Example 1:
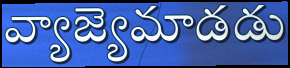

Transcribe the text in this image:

వ్యాజ్యెమాడడు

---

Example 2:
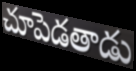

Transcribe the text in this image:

చూపెడతాడు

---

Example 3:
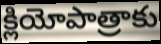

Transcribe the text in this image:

క్లియోపాత్రాకు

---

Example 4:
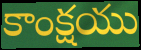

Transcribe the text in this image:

కాంక్షయు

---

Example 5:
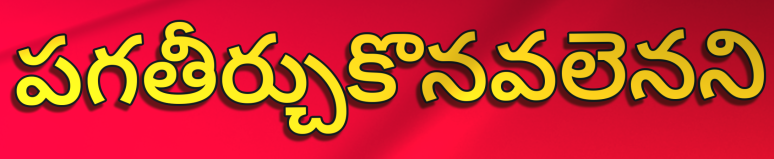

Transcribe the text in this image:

పగతీర్చుకొనవలెనని